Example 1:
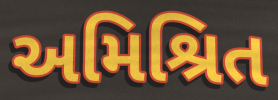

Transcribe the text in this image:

અમિશ્રિત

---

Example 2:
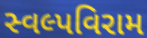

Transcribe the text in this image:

સ્વલ્પવિરામ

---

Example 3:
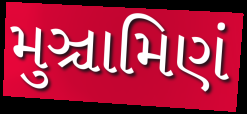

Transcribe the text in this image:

મુઞ્ચામિણં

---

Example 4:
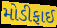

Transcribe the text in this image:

મોડીફાઈ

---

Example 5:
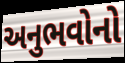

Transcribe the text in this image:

અનુભવોનો